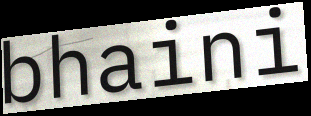
bhaini